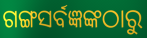
ଗଙ୍ଗସର୍ବଜ୍ଞଙ୍କଠାରୁ